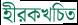
হীরকখচিত